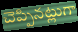
చెప్పినట్లుగా